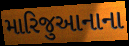
મારિજુઆનાના